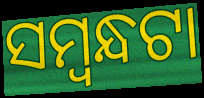
ସମ୍ବନ୍ଧଟା